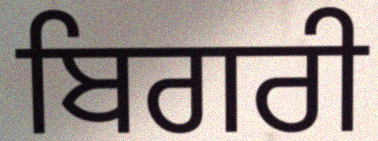
ਬਿਗਰੀ